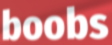
boobs